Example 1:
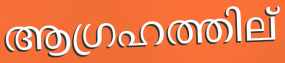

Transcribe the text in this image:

ആഗ്രഹത്തില്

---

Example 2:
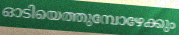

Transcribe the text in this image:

ഓടിയെത്തുമ്പോഴേക്കും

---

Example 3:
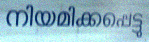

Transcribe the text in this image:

നിയമിക്കപ്പെട്ടു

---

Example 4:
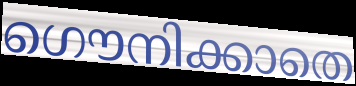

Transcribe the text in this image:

ഗൌനിക്കാതെ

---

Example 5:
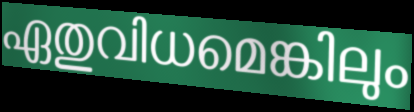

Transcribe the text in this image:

ഏതുവിധമെങ്കിലും